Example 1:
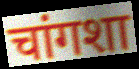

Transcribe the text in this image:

चांगशा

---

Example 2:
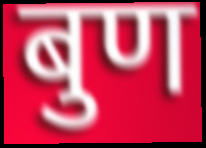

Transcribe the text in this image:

बुण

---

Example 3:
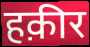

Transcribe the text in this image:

हक़ीर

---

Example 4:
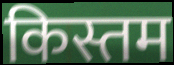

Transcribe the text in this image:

किस्तम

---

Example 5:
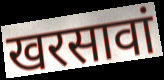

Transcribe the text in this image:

खरसावां